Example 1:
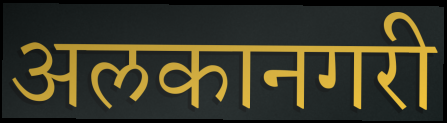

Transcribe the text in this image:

अलकानगरी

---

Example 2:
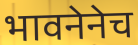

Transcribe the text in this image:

भावनेनेच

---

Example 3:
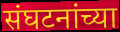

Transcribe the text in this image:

संघटनांच्या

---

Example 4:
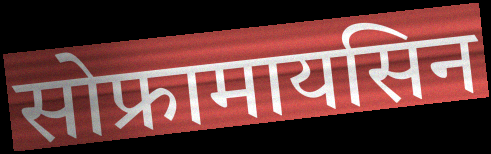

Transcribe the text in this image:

सोफ्रामायसिन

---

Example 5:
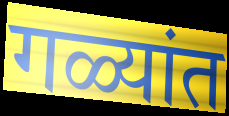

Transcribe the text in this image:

गळ्यांत